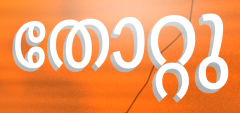
തോറ്റു